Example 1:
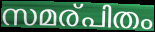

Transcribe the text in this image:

സമര്പിതം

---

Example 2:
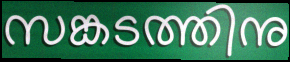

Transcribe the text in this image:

സങ്കടത്തിനു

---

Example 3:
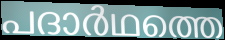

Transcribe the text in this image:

പദാർഥത്തെ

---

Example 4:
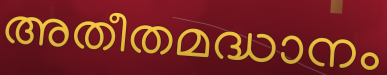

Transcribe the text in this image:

അതീതമദ്ധാനം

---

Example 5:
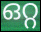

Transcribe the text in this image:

ഒറ്റ